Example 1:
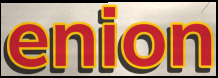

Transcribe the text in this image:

enion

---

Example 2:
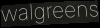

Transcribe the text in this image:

walgreens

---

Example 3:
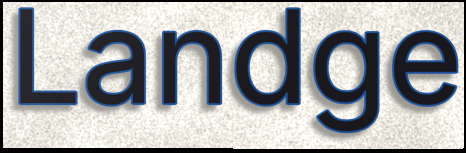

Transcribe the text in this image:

Landge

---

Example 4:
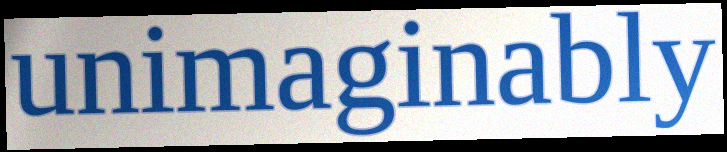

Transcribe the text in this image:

unimaginably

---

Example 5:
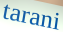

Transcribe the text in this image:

tarani